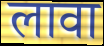
लावा